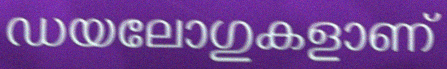
ഡയലോഗുകളാണ്